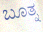
ಬೂತ್ನ